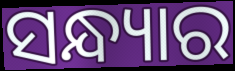
ସନ୍ଧ୍ୟାର